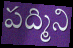
పద్మిని